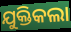
ଯୁକ୍ତିକଲା